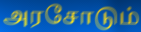
அரசோடும்